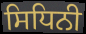
ਸਿਧਿਨੀ